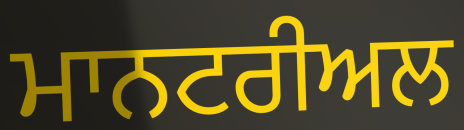
ਮਾਨਟਰੀਅਲ